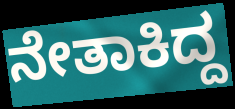
ನೇತಾಕಿದ್ದ